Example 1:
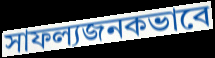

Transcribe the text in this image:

সাফল্যজনকভাবে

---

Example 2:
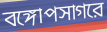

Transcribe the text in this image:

বঙ্গোপসাগরে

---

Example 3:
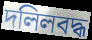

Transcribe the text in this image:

দলিলবদ্ধ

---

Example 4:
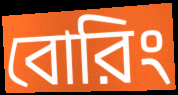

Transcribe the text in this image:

বোরিং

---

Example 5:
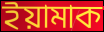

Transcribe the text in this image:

ইয়ামাক